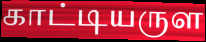
காட்டியருள